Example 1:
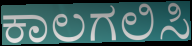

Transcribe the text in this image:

ಕಾಲಗಲಿಸಿ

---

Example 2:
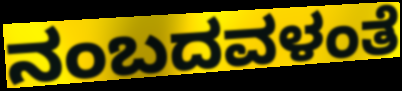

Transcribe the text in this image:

ನಂಬದವಳಂತೆ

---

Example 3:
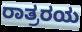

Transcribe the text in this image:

ರಾತ್ರರಯ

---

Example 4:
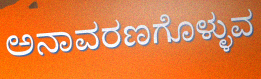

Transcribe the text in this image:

ಅನಾವರಣಗೊಳ್ಳುವ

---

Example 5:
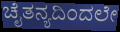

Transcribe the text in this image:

ಚೈತನ್ಯದಿಂದಲೇ